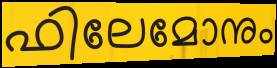
ഫിലേമോനും